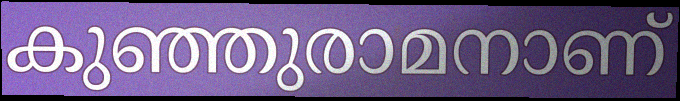
കുഞ്ഞുരാമനാണ്